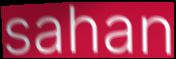
sahan